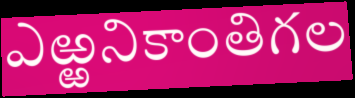
ఎఱ్ఱనికాంతిగల